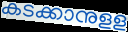
കടക്കാനുളള